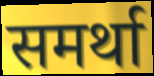
समर्था